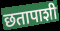
छतापाशी